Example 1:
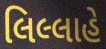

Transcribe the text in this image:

લિલ્લાહે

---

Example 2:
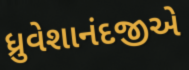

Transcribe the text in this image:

ધ્રુવેશાનંદજીએ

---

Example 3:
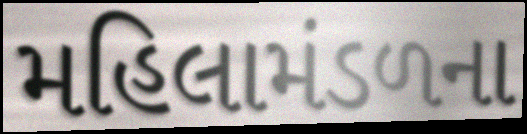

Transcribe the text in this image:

મહિલામંડળના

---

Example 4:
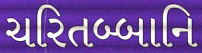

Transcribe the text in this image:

ચરિતબ્બાનિ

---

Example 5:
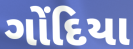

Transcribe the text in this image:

ગોંદિયા